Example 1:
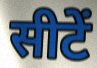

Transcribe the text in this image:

सीटें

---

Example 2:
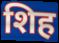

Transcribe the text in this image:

शिह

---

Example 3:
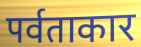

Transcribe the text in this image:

पर्वताकार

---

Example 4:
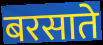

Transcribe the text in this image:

बरसाते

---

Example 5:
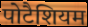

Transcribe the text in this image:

पोटैशियम